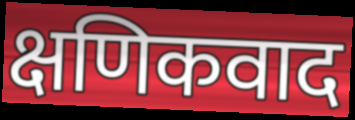
क्षणिकवाद